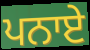
ਪਨਾਏ